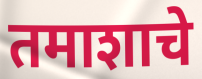
तमाशाचे